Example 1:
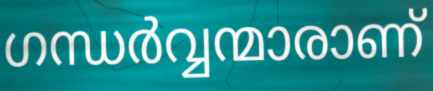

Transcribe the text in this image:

ഗന്ധർവ്വന്മാരാണ്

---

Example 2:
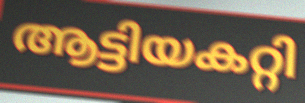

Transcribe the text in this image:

ആട്ടിയകറ്റി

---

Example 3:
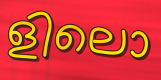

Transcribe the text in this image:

ളിലൊ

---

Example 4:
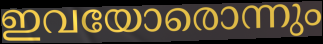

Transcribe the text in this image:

ഇവയോരൊന്നും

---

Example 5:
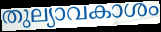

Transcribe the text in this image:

തുല്യാവകാശം